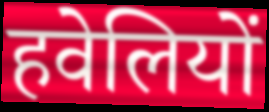
हवेलियों